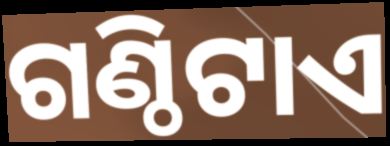
ଗଣ୍ଠିଟାଏ